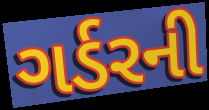
ગર્ડરની